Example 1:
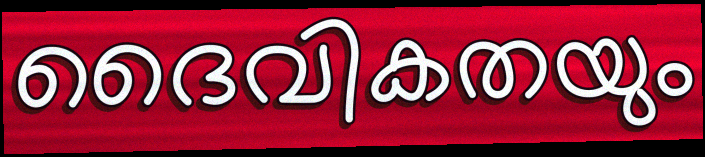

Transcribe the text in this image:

ദൈവികതയും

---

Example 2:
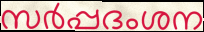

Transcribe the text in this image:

സർപ്പദംശന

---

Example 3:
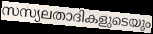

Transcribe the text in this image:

സസ്യലതാദികളുടെയും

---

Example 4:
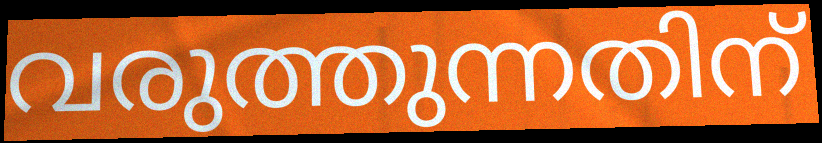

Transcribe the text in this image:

വരുത്തുന്നതിന്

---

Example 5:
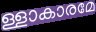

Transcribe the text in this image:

ള്ളാകാരമേ